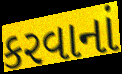
કરવાનાં